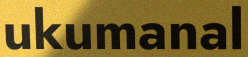
ukumanal